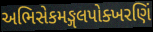
અભિસેકમઙ્ગલપોક્ખરણિં